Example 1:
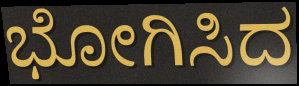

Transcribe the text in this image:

ಭೋಗಿಸಿದ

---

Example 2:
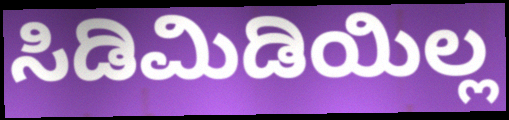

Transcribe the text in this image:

ಸಿಡಿಮಿಡಿಯಿಲ್ಲ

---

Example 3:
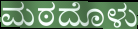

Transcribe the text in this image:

ಮಠದೊಳು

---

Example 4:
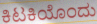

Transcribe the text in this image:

ಕಿಟಕಿಯೊಂದು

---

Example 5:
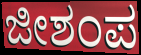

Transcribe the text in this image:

ಜೀಶಂಪ